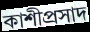
কাশীপ্রসাদ